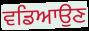
ਵਡਿਆਉਣ